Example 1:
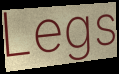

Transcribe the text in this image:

Legs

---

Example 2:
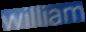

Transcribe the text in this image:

william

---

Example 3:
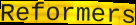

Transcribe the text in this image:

Reformers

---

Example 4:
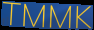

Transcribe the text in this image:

TMMK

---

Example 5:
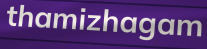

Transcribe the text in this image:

thamizhagam